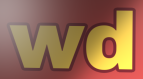
wd